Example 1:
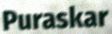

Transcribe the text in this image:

Puraskar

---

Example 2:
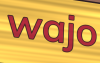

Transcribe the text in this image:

wajo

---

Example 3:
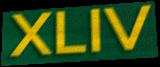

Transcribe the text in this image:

XLIV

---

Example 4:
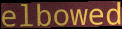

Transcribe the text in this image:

elbowed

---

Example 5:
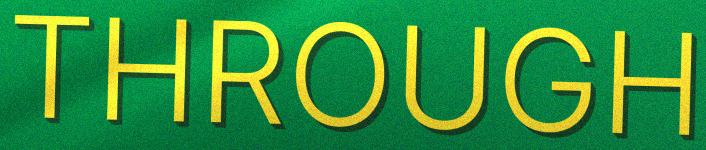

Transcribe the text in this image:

THROUGH